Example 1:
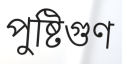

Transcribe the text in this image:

পুষ্টিগুণ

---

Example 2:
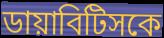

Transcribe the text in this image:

ডায়াবিটিসকে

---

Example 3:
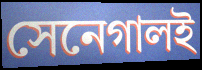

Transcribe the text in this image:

সেনেগালই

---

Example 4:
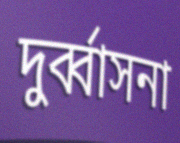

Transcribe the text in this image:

দুর্ব্বাসনা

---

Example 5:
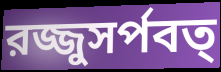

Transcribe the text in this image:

রজ্জুসর্পবত্